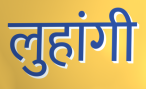
लुहांगी